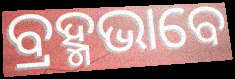
ବ୍ରହ୍ମଭାବେ